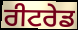
ਰੀਟਰੇਡ